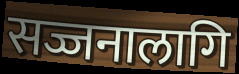
सज्जनालागि